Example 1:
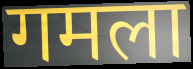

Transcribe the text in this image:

गमला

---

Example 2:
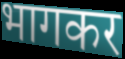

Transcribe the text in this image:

भागकर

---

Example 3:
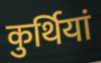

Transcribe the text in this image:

कुर्थियां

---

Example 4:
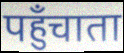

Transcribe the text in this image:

पहुँचाता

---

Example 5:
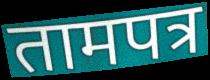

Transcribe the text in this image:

तामपत्र